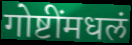
गोष्टींमधलं